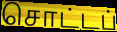
சொட்டப்